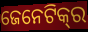
ଜେନେଟିକ୍‌ର